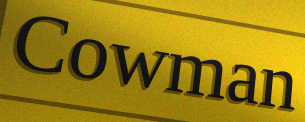
Cowman